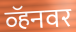
व्हॅनवर